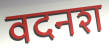
वदनश